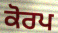
ਕੋਰਪ